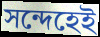
সন্দেহেই